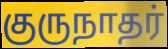
குருநாதர்